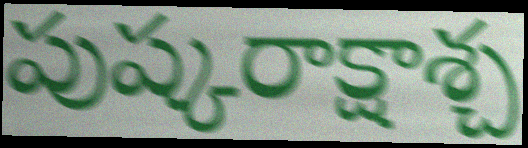
పుష్కరాక్షాశ్చ